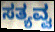
ಸತ್ಯವ್ವ